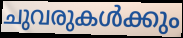
ചുവരുകൾക്കും